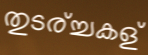
തുടര്ച്ചകള്